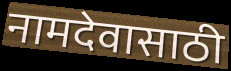
नामदेवासाठी